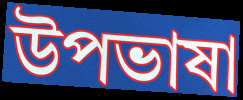
উপভাষা